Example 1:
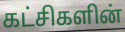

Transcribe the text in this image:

கட்சிகளின்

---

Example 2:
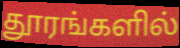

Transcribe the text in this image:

தூரங்களில்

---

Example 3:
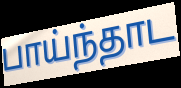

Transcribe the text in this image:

பாய்ந்தாட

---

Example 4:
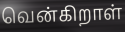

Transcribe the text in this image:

வென்கிறாள்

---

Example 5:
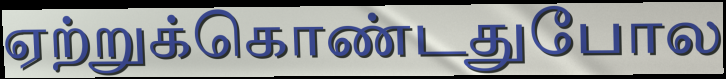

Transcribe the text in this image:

ஏற்றுக்கொண்டதுபோல